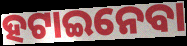
ହଟାଇନେବା